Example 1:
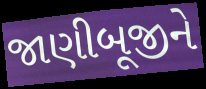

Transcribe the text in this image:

જાણીબૂજીને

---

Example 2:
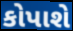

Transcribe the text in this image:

કોપાશે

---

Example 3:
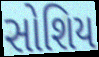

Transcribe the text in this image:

સોશિય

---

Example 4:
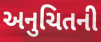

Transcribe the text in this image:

અનુચિતની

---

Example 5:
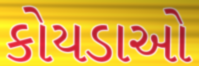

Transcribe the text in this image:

કોયડાઓ